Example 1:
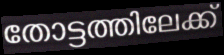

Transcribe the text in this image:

തോട്ടത്തിലേക്ക്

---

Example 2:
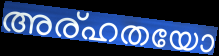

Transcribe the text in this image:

അര്ഹതയോ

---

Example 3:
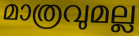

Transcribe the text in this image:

മാത്രവുമല്ല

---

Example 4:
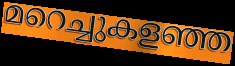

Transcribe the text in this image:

മറെച്ചുകളഞ്ഞ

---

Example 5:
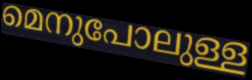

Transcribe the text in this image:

മെനുപോലുള്ള